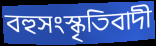
বহুসংস্কৃতিবাদী